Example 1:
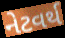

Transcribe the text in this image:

નેટવર્થ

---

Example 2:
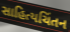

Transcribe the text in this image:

સાહિત્યચિંતન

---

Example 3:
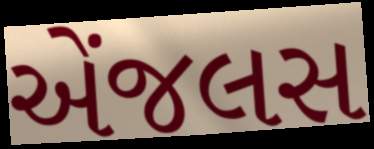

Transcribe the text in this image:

એંજલસ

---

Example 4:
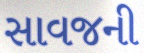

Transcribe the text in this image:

સાવજની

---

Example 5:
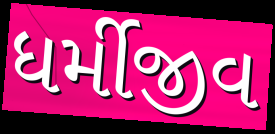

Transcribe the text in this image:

ધર્મીજીવ